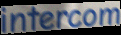
intercom